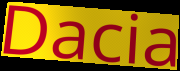
Dacia